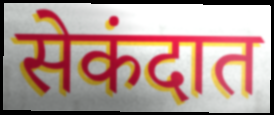
सेकंदात